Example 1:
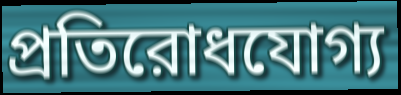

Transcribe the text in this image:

প্রতিরোধযোগ্য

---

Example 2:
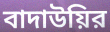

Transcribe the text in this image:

বাদাউয়ির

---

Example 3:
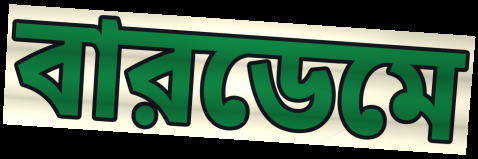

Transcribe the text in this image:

বারডেমে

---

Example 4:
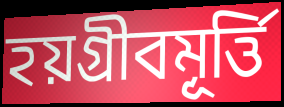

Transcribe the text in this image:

হয়গ্রীবমূর্ত্তি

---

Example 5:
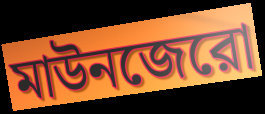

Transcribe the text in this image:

মাউনজেরো